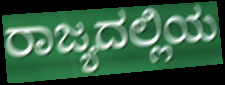
ರಾಜ್ಯದಲ್ಲಿಯ